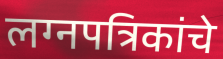
लग्नपत्रिकांचे